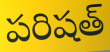
పరిషత్